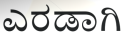
ಎರಡಾಗಿ